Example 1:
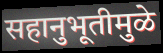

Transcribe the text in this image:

सहानुभूतीमुळे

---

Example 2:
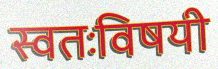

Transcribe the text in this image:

स्वतःविषयी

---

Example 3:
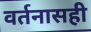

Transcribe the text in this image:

वर्तनासही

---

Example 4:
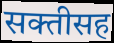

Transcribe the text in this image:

सक्तीसह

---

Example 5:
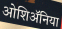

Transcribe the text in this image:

ओशिॲनिया